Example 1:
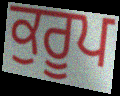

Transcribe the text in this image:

ਕੁਰੂਪ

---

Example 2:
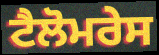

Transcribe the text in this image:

ਟੈਲੋਮਰੇਸ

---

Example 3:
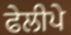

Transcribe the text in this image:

ਫੇਲੀਪੇ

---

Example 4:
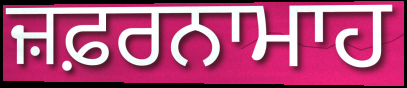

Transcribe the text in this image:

ਜ਼ਫ਼ਰਨਾਮਾਹ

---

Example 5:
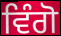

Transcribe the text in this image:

ਵਿੰਗੋ